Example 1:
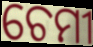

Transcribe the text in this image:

ଚେମୀ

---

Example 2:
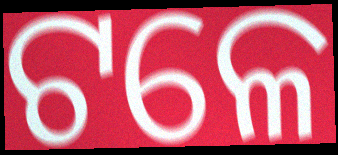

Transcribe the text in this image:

ଟଳେ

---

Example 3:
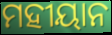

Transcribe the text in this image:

ମହୀୟାନ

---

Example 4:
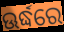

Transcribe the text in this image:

ଊର୍ଦ୍ଧରେ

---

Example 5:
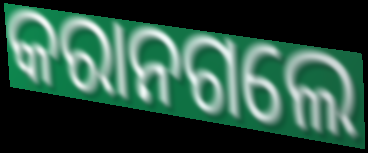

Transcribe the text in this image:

କରାନଗଲେ